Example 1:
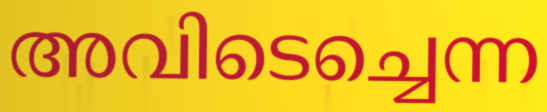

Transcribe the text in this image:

അവിടെച്ചെന്ന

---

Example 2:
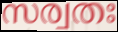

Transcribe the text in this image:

സര്വതഃ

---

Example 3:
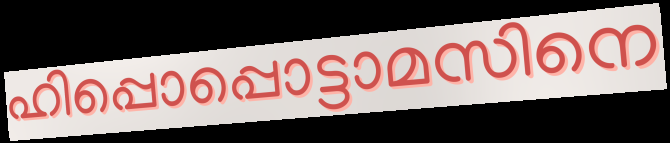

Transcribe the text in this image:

ഹിപ്പൊപ്പൊട്ടാമസിനെ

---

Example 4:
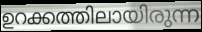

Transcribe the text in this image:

ഉറക്കത്തിലായിരുന്ന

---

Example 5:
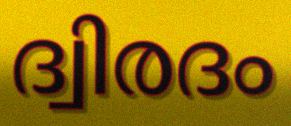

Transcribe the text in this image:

ദ്വിരദം